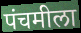
पंचमीला